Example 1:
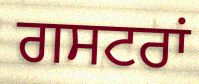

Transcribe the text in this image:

ਗਸਟਰਾਂ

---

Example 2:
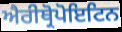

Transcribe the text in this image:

ਐਰੀਥ੍ਰੋਪੋਇਟਿਨ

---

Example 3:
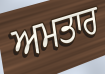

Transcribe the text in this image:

ਅਮਤਾਰ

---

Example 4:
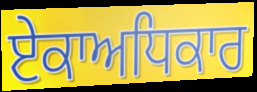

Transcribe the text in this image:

ਏਕਾਅਧਿਕਾਰ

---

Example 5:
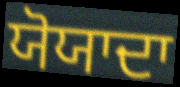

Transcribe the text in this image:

ਯੋਯਾਦਾ